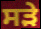
ਸੜੇ